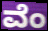
ವೆಂ